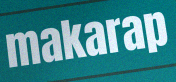
makarap